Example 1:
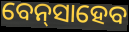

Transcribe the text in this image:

ବେନ୍‌ସାହେବ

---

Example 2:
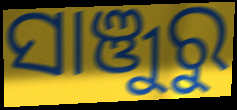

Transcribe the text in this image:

ସାଞ୍ଜୁରୁ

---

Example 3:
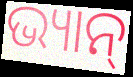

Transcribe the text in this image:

ଭ୍ୟାନ୍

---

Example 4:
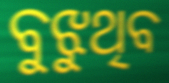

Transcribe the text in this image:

ବୁଝୁଥିବ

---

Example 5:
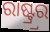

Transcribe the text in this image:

ରାଷ୍ଟ୍ର୍ରର